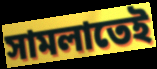
সামলাতেই